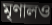
মৃণালও